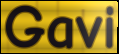
Gavi